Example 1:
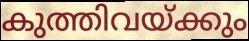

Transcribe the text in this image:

കുത്തിവയ്ക്കും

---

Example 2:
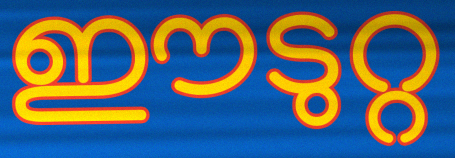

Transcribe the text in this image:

ഈടുറ്റ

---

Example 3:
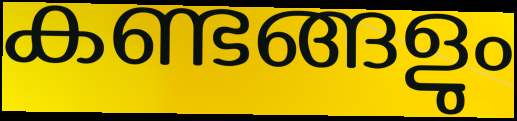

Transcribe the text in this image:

കണ്ടങ്ങളും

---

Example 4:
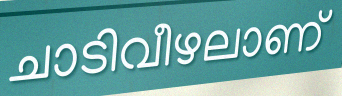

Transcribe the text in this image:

ചാടിവീഴലാണ്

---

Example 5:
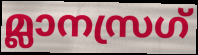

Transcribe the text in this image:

മ്ലാനസ്രഗ്